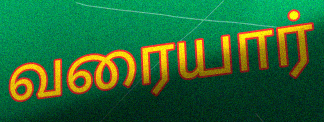
வரையார்